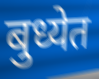
बुध्येत